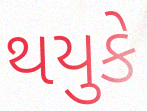
થયુકે